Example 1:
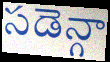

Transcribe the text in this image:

సడెన్గా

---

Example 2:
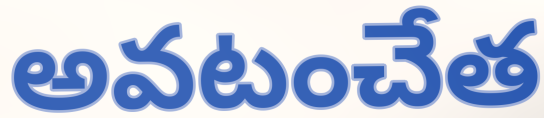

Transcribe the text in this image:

అవటంచేత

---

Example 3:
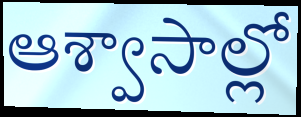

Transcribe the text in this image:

ఆశ్వాసాల్లో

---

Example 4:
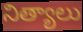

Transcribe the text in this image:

నిత్యాలు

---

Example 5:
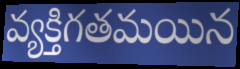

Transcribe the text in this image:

వ్యక్తిగతమయిన